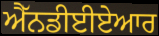
ਐੱਨਡੀਈਏਆਰ